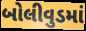
બોલીવુડમાં